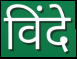
विंदे